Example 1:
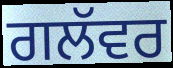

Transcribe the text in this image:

ਗਲੱਵਰ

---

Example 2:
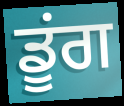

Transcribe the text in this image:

ਡੂਂਗ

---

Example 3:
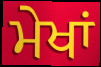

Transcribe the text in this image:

ਮੇਖਾਂ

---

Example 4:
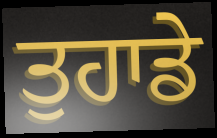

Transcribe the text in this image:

ਤੁਹਾਡੇ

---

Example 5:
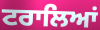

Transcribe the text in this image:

ਟਰਾਲਿਆਂ